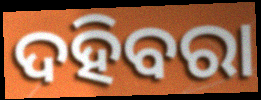
ଦହିବରା